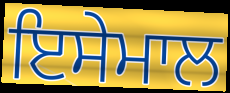
ਇਸੇਮਾਲ